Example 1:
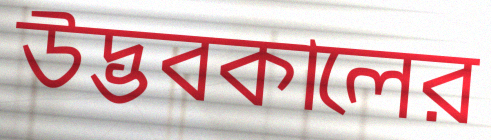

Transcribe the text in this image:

উদ্ভবকালের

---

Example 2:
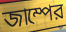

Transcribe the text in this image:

জাম্পের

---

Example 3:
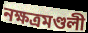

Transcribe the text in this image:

নক্ষত্রমণ্ডলী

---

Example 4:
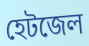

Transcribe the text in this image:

হেটজেল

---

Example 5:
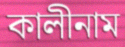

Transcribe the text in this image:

কালীনাম